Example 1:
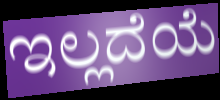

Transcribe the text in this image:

ಇಲ್ಲದೆಯೆ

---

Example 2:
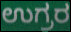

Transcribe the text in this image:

ಉಗ್ರರ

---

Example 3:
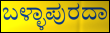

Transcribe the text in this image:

ಬಳ್ಳಾಪುರದಾ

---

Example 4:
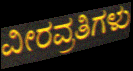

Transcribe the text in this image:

ವೀರವ್ರತಿಗಳು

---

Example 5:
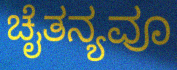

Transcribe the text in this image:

ಚೈತನ್ಯವೂ